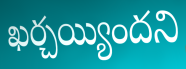
ఖర్చయ్యిందని